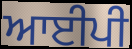
ਆਈਪੀ